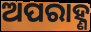
ଅପରାହ୍ଣ